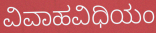
ವಿವಾಹವಿಧಿಯಂ